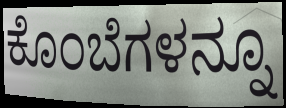
ಕೊಂಬೆಗಳನ್ನೂ